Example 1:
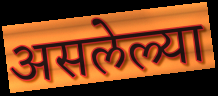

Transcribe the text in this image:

असलेल्या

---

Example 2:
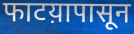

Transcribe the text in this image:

फाटय़ापासून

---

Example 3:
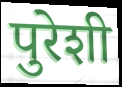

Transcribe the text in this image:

पुरेशी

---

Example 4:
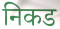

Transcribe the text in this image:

निकड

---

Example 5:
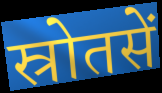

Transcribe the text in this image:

स्रोतसें